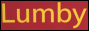
Lumby